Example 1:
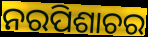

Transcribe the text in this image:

ନରପିଶାଚର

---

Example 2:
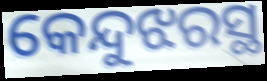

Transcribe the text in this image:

କେନ୍ଦୁଝରସ୍ଥ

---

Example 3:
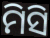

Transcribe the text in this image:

ମିସି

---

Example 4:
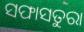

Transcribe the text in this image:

ସଫାସତୁରା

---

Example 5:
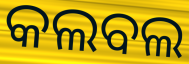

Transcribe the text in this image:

କଲବଲ